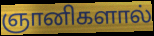
ஞானிகளால்